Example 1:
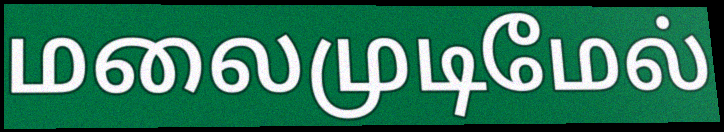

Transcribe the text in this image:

மலைமுடிமேல்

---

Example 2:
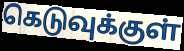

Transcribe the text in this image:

கெடுவுக்குள்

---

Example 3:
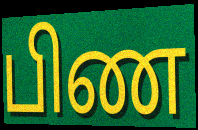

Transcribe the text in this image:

பிண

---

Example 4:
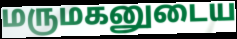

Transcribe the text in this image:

மருமகனுடைய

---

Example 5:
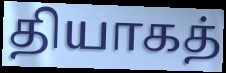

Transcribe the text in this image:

தியாகத்